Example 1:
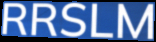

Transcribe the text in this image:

RRSLM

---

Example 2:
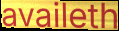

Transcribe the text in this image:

availeth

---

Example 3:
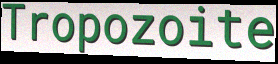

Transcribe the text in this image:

Tropozoite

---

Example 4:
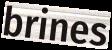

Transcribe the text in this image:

brines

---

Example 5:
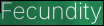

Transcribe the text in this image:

Fecundity